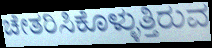
ಚೇತರಿಸಿಕೊಳ್ಳುತ್ತಿರುವ